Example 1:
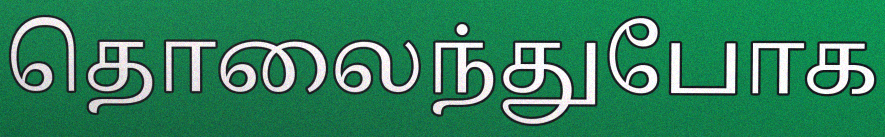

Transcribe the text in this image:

தொலைந்துபோக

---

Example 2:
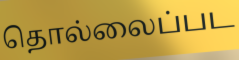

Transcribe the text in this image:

தொல்லைப்பட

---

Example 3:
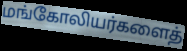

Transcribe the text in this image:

மங்கோலியர்களைத்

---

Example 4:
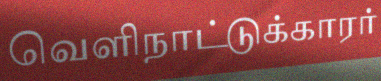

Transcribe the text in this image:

வெளிநாட்டுக்காரர்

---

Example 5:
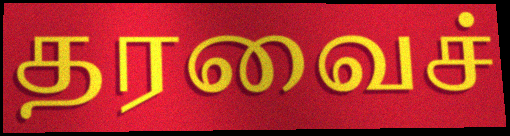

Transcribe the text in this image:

தரவைச்